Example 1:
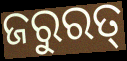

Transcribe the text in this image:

ଜରୁରତ୍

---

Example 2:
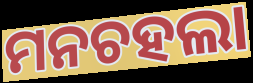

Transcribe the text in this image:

ମନଚହଲା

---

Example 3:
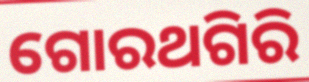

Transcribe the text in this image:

ଗୋରଥଗିରି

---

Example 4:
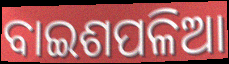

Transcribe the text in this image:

ବାଇଶପଳିଆ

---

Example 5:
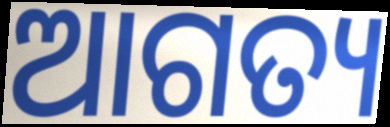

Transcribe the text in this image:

ଆଗତ୍ୟ